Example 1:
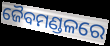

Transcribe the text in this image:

ଜୈବମଣ୍ଡଳରେ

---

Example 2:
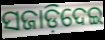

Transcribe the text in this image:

ସଜାଡ଼ିଦେଇ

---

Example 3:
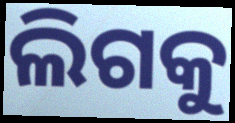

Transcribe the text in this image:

ଲିଗକୁ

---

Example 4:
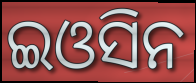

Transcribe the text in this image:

ଇଓସିନ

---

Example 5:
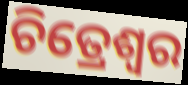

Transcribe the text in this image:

ଚିତ୍ରେଶ୍ୱର